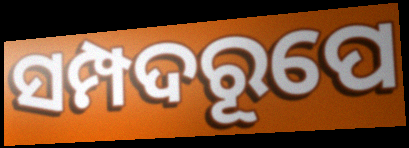
ସମ୍ପଦରୂପେ